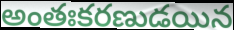
అంతఃకరణుడయిన